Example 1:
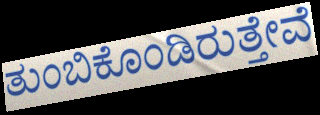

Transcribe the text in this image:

ತುಂಬಿಕೊಂಡಿರುತ್ತೇವೆ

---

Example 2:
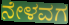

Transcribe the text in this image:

ನೇಳವಗ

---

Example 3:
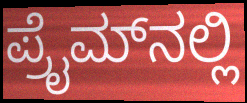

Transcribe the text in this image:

ಪ್ರೈಮ್‌ನಲ್ಲಿ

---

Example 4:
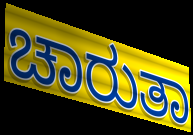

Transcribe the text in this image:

ಚಾರುತಾ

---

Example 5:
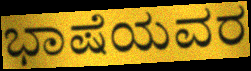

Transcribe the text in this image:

ಭಾಷೆಯವರ